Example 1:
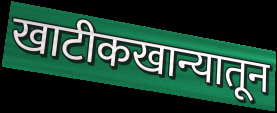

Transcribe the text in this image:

खाटीकखान्यातून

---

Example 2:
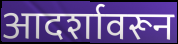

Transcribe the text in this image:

आदर्शावरून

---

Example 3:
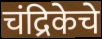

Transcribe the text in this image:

चंद्रिकेचे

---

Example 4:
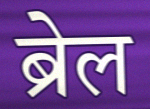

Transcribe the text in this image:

ब्रेल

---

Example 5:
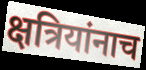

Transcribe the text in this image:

क्षत्रियांनाच